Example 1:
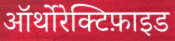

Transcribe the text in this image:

ऑर्थोरेक्टिफ़ाइड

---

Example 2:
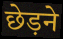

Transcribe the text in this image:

छेड़ने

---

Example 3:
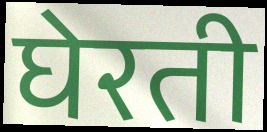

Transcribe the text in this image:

घेरती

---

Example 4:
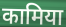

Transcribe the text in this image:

कामिया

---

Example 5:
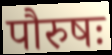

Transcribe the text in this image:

पौरुषः